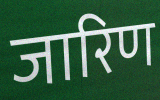
जारिण